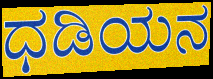
ಧಡಿಯನ